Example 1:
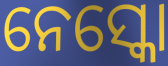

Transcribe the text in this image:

ନେସ୍କୋ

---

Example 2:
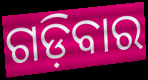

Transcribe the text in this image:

ଗଡ଼ିବାର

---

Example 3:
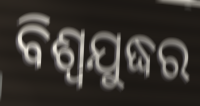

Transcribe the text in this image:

ବିଶ୍ବଯୁଦ୍ଧର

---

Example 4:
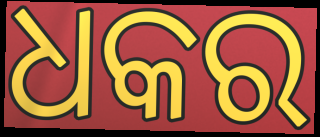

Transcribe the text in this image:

ଧକର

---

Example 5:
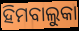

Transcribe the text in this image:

ହିମବାଲୁକା